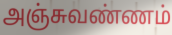
அஞ்சுவண்ணம்